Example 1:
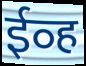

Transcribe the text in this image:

ईव्ह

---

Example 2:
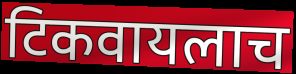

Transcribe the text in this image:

टिकवायलाच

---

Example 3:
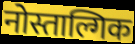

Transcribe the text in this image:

नोस्ताल्गिक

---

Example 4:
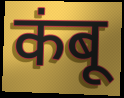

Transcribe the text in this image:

कंबू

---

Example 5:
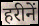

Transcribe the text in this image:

हरीनें